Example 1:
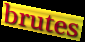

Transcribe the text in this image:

brutes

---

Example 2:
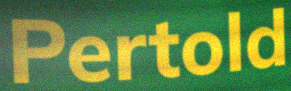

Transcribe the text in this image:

Pertold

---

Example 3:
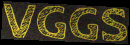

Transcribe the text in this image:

VGGS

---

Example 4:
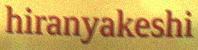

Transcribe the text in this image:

hiranyakeshi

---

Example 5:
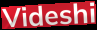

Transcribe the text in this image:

Videshi